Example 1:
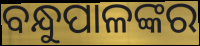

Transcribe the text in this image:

ବନ୍ଧୁପାଳଙ୍କର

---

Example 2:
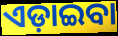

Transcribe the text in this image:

ଏଡ଼ାଇବା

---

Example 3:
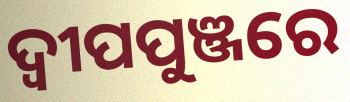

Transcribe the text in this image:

ଦ୍ବୀପପୁଞ୍ଜରେ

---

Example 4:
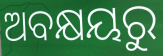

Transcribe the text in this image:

ଅବକ୍ଷୟରୁ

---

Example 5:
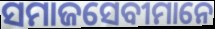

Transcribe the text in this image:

ସମାଜସେବୀମାନେ